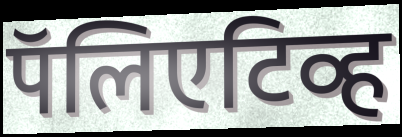
पॅलिएटिव्ह